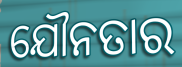
ଯୌନତାର